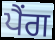
ਪੈਂਗ